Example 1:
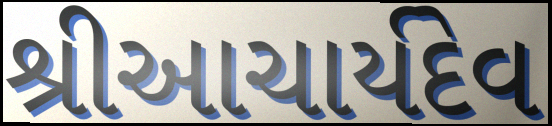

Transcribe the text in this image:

શ્રીઆચાર્યદેવ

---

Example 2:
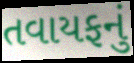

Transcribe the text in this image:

તવાયફનું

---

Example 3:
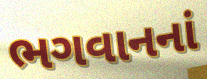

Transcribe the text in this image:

ભગવાનનાં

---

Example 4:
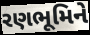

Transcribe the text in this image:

રણભૂમિને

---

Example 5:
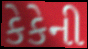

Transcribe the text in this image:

કેકેની